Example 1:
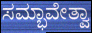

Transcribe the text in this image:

ಸಮ್ಭಾವೇತ್ವಾ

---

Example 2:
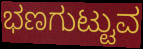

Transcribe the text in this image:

ಭಣಗುಟ್ಟುವ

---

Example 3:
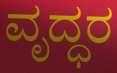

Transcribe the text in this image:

ವೃದ್ಧರ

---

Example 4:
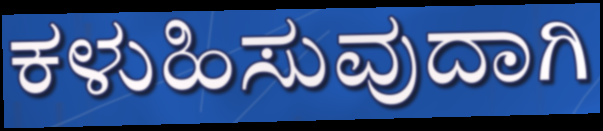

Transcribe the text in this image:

ಕಳುಹಿಸುವುದಾಗಿ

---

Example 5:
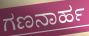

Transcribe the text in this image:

ಗಣನಾರ್ಹ